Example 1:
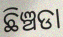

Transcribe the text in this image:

ଛିଞ୍ଚଡା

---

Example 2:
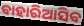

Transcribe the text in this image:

ବାହାରିଆସିବ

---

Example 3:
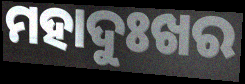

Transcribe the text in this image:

ମହାଦୁଃଖର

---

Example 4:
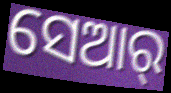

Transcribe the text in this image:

ସେଆର୍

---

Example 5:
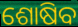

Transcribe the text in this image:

ଶୋଷିବ